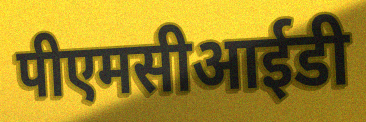
पीएमसीआईडी